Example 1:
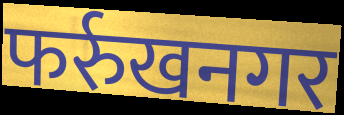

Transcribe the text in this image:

फर्रुखनगर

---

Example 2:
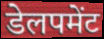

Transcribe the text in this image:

डेलपमेंट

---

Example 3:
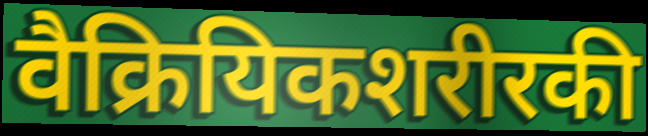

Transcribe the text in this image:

वैक्रियिकशरीरकी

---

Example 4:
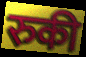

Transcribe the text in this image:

रुकी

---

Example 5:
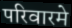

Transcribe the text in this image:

परिवारमे